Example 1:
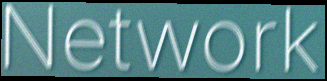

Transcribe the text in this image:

Network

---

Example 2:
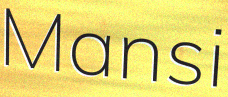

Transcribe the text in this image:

Mansi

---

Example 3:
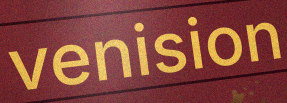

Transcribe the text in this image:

venision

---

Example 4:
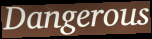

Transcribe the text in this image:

Dangerous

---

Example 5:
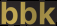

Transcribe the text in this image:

bbk